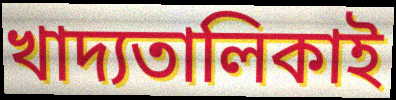
খাদ্যতালিকাই